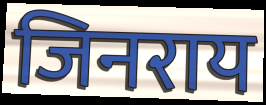
जिनराय